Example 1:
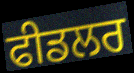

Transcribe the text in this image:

ਫੀਡਲਰ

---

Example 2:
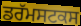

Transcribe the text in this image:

ਡਰੱਮਸਟਕਸ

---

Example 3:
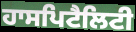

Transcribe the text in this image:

ਹਾਸਪਿਟੈਲਿਟੀ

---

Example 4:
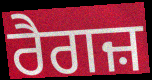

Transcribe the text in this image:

ਰੈਗਜ਼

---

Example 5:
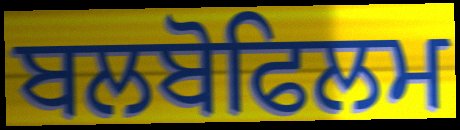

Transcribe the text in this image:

ਬਲਬੋਫਿਲਮ